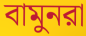
বামুনরা